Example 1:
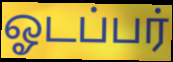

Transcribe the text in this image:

ஓடப்பர்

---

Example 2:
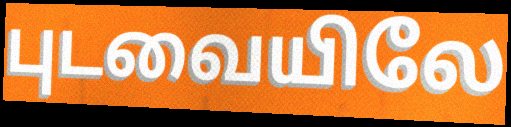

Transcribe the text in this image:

புடவையிலே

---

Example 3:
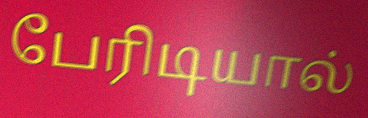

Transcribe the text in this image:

பேரிடியால்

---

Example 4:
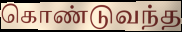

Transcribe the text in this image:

கொண்டுவந்த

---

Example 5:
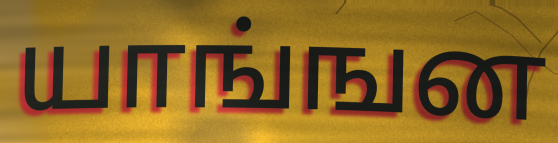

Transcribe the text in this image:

யாங்ஙன